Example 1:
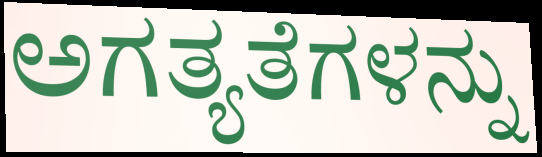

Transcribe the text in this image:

ಅಗತ್ಯತೆಗಳನ್ನು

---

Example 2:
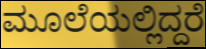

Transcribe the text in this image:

ಮೂಲೆಯಲ್ಲಿದ್ದರೆ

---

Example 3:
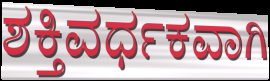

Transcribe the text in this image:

ಶಕ್ತಿವರ್ಧಕವಾಗಿ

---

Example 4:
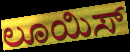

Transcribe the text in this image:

ಲೂಯಿಸ್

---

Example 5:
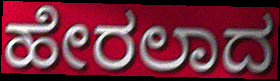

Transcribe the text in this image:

ಹೇರಲಾದ